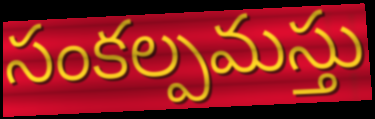
సంకల్పమస్తు